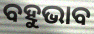
ବହୁଭାବ